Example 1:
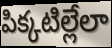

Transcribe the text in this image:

పిక్కటిల్లేలా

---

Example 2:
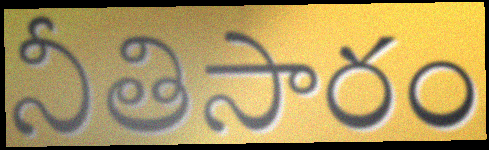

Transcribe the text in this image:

నీతిసారం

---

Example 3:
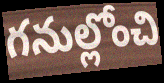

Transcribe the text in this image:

గనుల్లోంచి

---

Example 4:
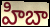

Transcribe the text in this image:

హిబా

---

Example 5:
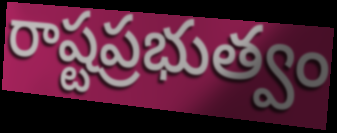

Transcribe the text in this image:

రాష్టప్రభుత్వం